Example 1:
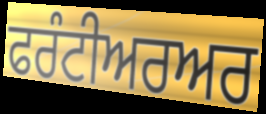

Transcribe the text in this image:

ਫਰੰਟੀਅਰਅਰ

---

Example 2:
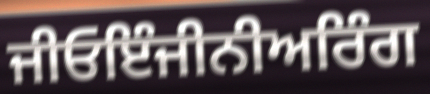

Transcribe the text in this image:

ਜੀਓਇੰਜੀਨੀਅਰਿੰਗ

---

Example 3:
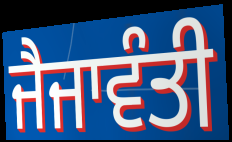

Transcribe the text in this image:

ਜੈਜਾਵੰਤੀ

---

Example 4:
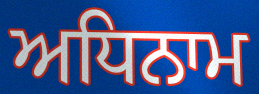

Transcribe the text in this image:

ਅਧਿਨਾਮ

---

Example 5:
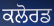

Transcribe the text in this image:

ਕਲੋਰਡ